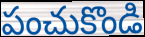
పంచుకొండి